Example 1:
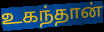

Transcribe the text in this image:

உகந்தான்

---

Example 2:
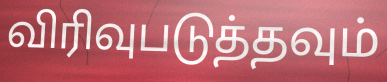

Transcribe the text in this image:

விரிவுபடுத்தவும்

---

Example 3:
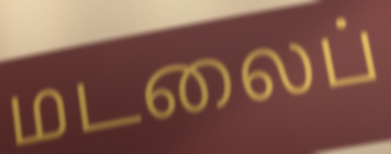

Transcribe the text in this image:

மடலைப்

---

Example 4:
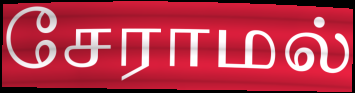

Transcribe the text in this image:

சேராமல்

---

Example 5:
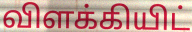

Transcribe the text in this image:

விளக்கியிட்